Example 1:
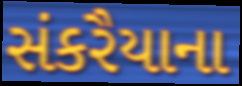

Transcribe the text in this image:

સંકરૈયાના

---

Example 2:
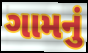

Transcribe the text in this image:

ગામનું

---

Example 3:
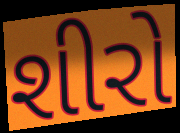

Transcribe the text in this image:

શીરો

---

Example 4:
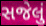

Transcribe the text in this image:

સજેલું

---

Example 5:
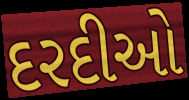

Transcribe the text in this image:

દરદીઓ